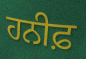
ਹਨੀਫ਼